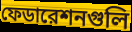
ফেডারেশনগুলি